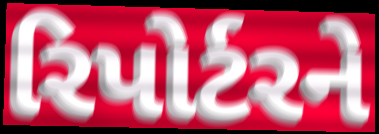
રિપોર્ટરને